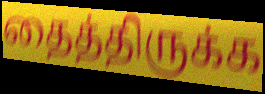
தைத்திருக்க